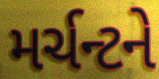
મર્ચન્ટને